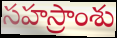
సహస్రాంశు